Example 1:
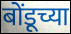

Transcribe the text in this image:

बोंडूच्या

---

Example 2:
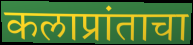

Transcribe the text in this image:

कलाप्रांताचा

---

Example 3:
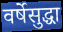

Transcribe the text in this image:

वर्षेसुद्धा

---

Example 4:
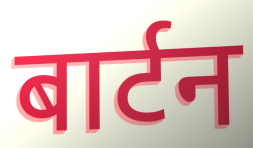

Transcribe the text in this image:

बार्टन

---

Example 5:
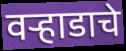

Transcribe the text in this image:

वऱ्हाडाचे